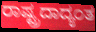
ರಾಷ್ಟ್ರದಾದ್ಯಂತ